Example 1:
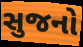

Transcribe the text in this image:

સુજનો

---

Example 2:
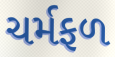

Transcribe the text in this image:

ચર્મફળ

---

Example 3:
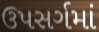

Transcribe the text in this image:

ઉપસર્ગમાં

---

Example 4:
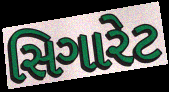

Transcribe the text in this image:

સિગારેટ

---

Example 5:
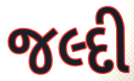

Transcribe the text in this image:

જલ્દી